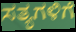
ಸತ್ಯಗಳಿಗೆ